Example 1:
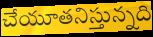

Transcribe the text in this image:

చేయూతనిస్తున్నది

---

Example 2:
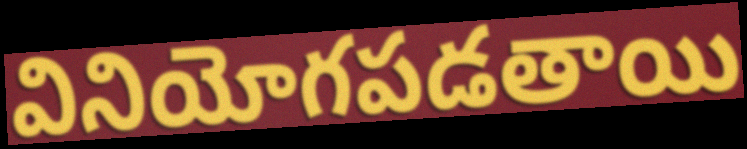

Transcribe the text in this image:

వినియోగపడతాయి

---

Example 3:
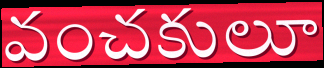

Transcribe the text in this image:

వంచకులూ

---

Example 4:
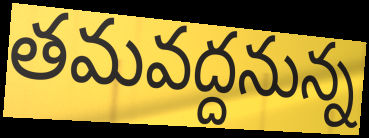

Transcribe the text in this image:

తమవద్దనున్న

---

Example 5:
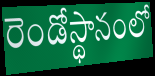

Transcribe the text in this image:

రెండోస్థానంలో